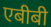
एबीबी